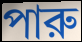
পারু